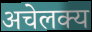
अचेलक्य